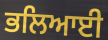
ਭਲਿਆਈ